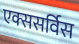
एक्ससर्विस